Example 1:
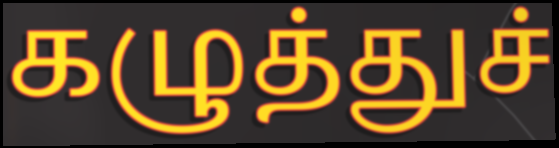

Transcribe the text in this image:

கழுத்துச்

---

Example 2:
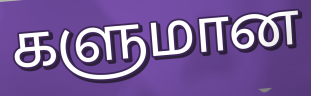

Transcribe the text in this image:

களுமான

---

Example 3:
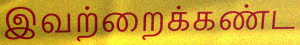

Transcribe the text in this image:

இவற்றைக்கண்ட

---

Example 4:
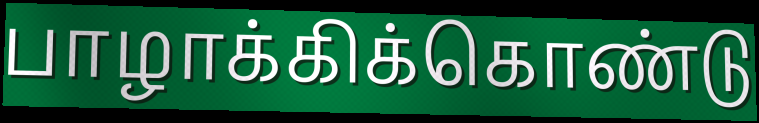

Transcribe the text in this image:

பாழாக்கிக்கொண்டு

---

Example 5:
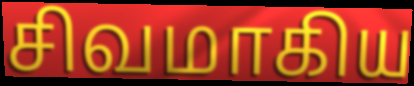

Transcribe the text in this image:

சிவமாகிய